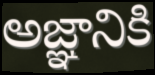
అజ్ఞానికి